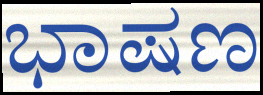
ಭಾಷಣ